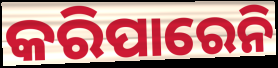
କରିପାରେନି